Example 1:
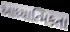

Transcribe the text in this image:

આધ્યાત્મિકતા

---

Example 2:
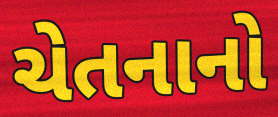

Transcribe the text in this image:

ચેતનાનો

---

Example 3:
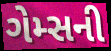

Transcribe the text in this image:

ગેમ્સની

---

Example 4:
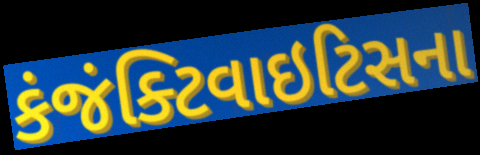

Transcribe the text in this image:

કંજંક્ટિવાઇટિસના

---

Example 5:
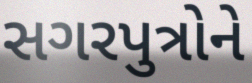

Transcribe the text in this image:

સગરપુત્રોને